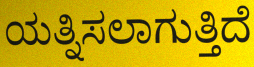
ಯತ್ನಿಸಲಾಗುತ್ತಿದೆ